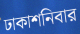
ঢাকাশনিবার